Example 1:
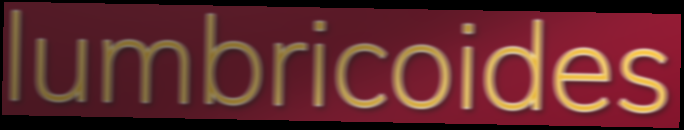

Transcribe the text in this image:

lumbricoides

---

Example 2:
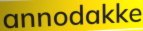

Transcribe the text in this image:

annodakke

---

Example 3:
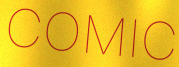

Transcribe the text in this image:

COMIC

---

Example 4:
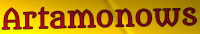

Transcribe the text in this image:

Artamonows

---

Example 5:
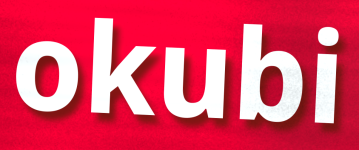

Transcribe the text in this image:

okubi